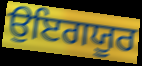
ਉਇਗਯੂਰ